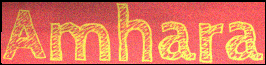
Amhara